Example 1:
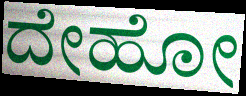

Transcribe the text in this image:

ದೇಹೋ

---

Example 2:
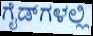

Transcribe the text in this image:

ಗೈಡ್‌ಗಳಲ್ಲಿ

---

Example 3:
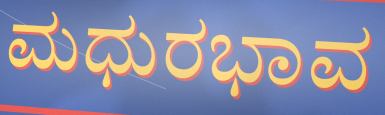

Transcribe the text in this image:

ಮಧುರಭಾವ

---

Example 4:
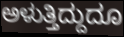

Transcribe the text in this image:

ಅಳುತ್ತಿದ್ದುದೂ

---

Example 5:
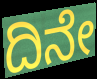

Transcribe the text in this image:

ದಿನೇ